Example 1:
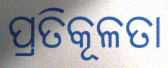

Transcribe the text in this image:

ପ୍ରତିକୂଳତା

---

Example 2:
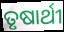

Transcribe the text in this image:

ତୃଷାର୍ଥୀ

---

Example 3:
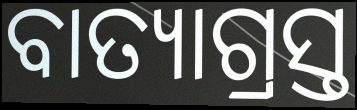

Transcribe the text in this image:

ବାତ୍ୟାଗ୍ରସ୍ତ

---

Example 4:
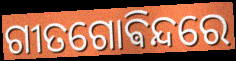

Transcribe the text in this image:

ଗୀତଗୋଵିନ୍ଦରେ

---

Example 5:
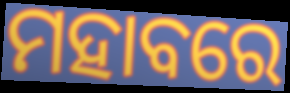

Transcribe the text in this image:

ମହାବରେ